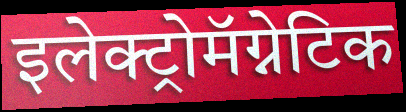
इलेक्ट्रोमॅग्नेटिक